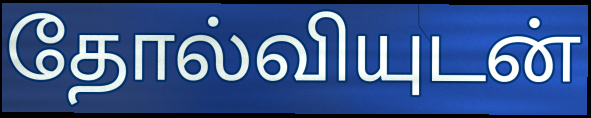
தோல்வியுடன்